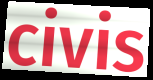
civis